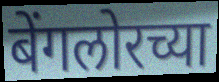
बेंगलोरच्या